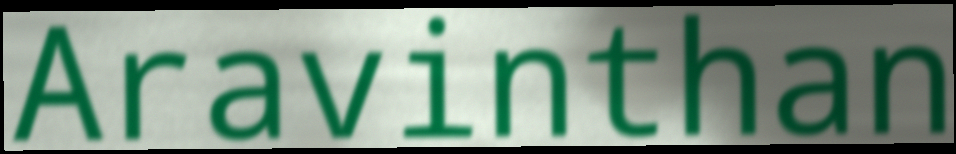
Aravinthan